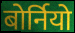
बोर्नियो